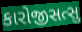
કારોજીસત્સુ